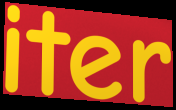
iter